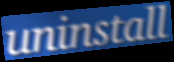
uninstall